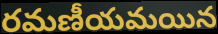
రమణీయమయిన